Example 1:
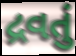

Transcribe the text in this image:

દ્રવતું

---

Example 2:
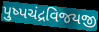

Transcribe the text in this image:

પુષ્પચંદ્રવિજયજી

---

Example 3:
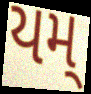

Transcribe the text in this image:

યમ્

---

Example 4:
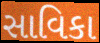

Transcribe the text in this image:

સાવિકા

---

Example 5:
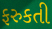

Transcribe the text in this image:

ફરુકતી